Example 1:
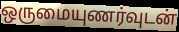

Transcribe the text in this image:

ஒருமையுணர்வுடன்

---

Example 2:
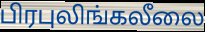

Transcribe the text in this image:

பிரபுலிங்கலீலை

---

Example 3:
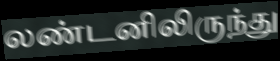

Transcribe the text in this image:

லண்டனிலிருந்து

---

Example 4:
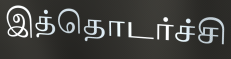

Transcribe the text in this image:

இத்தொடர்ச்சி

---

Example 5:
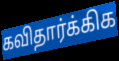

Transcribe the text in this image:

கவிதார்க்கிக